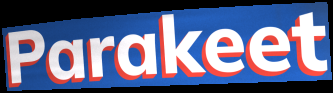
Parakeet